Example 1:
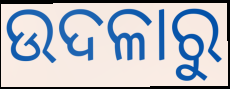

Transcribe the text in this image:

ଉଦଳାରୁ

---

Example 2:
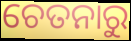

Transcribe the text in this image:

ଚେତନାରୁ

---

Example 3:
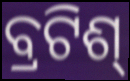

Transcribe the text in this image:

ବ୍ରଟିଶ୍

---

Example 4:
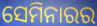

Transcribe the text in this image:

ସେମିନାରର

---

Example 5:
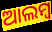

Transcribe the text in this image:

ଆଲମ୍ବ